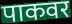
पाकवर